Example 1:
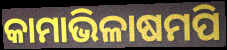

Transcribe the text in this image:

କାମାଭିଳାଷମପି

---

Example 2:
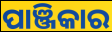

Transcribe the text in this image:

ପାଞ୍ଜିକାର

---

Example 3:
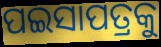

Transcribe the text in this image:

ପଇସାପତ୍ରକୁ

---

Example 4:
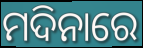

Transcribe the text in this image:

ମଦିନାରେ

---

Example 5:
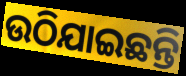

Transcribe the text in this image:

ଉଠିଯାଇଛନ୍ତି